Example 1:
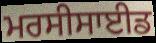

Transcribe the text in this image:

ਮਰਸੀਸਾਈਡ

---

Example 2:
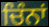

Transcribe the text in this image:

ਚਿੰਨਾਂ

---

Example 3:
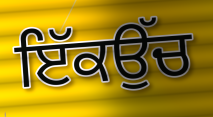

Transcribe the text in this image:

ਇੱਕਉੱਚ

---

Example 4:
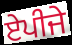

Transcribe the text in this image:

ਏਪੀਜੇ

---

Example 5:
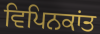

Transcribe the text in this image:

ਵਿਪਿਨਕਾਂਤ